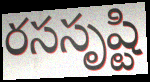
రససృష్టి